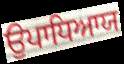
ਉਪਾਧਿਆਯ